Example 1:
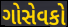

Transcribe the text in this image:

ગોસેવકો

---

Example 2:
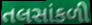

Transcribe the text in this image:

તલસાંકળી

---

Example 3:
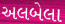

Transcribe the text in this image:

અલબેલા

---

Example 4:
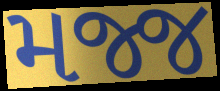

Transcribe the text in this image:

મજ્જ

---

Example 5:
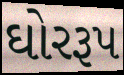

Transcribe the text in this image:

ઘોરરૂપ